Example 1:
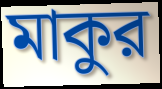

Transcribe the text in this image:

মাকুর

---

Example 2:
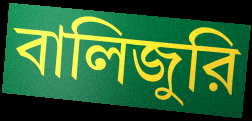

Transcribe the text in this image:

বালিজুরি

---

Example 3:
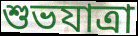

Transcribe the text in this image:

শুভযাত্রা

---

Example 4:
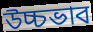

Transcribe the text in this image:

উচ্চভাব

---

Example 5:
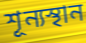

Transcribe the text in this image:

শূন্যস্থান